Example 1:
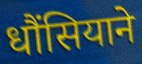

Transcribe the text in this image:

धौंसियाने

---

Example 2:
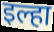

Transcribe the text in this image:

इल्हा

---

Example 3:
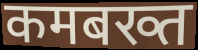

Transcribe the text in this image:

कमबख्त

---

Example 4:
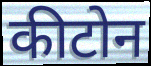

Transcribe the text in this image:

कीटोन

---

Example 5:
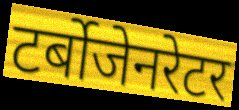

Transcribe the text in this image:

टर्बोजेनरेटर